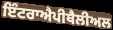
ਇੰਟਰਾਐਪੀਥੈਲੀਅਲ